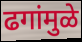
ढगांमुळे